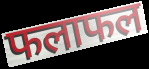
फलाफल